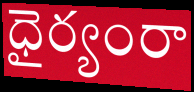
ధైర్యంరా